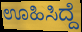
ಊಹಿಸಿದ್ದೆ